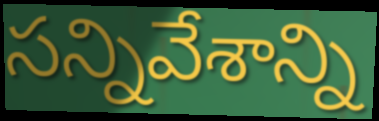
సన్నివేశాన్ని